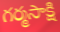
గర్మసాక్షి